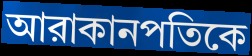
আরাকানপতিকে